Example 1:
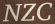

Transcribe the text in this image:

NZC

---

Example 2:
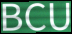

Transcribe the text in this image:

BCU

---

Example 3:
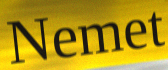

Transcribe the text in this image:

Nemet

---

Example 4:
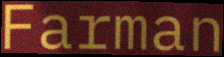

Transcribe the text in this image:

Farman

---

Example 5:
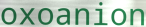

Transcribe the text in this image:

oxoanion